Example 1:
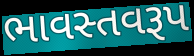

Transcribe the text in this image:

ભાવસ્તવરૂપ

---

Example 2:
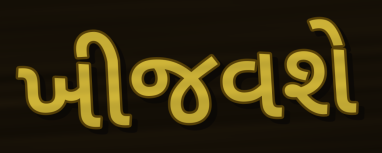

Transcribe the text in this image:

ખીજવશે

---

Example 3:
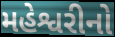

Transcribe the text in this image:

મહેશ્વરીનો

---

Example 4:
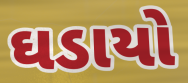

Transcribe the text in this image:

ઘડાયો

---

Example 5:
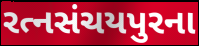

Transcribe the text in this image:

રત્નસંચયપુરના